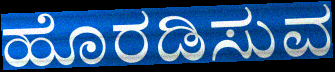
ಹೊರಡಿಸುವ